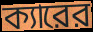
ক্যারের